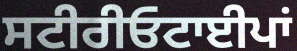
ਸਟੀਰੀਓਟਾਈਪਾਂ